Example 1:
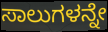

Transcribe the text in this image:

ಸಾಲುಗಳನ್ನೇ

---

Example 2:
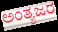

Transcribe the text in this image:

ಅಂತ್ಯಜರ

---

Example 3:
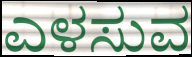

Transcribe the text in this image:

ಎಳಸುವ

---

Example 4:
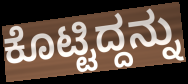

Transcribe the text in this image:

ಕೊಟ್ಟಿದ್ದನ್ನು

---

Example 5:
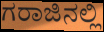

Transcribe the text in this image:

ಗರಾಜಿನಲ್ಲಿ